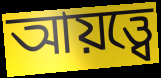
আয়ত্ত্বে